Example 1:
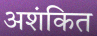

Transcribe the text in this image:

अशंकित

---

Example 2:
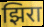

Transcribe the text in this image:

झिरा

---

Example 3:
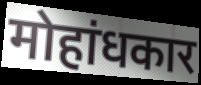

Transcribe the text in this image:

मोहांधकार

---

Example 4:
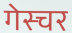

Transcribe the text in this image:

गेस्चर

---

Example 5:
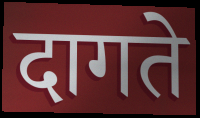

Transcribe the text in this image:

दागते